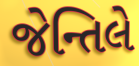
જેન્તિલે